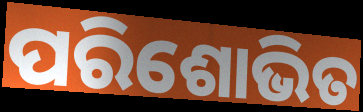
ପରିଶୋଭିତ